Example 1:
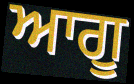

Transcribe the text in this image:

ਆਗੂ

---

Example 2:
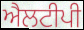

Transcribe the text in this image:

ਐਲਟੀਪੀ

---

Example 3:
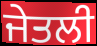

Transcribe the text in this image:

ਜੇਤਲੀ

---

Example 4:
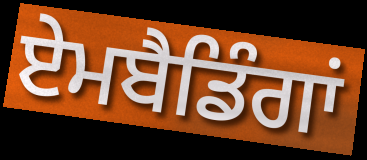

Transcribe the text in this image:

ਏਮਬੈਡਿੰਗਾਂ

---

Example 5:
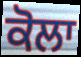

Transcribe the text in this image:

ਕੋਲਾ